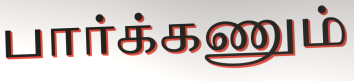
பார்க்கணும்